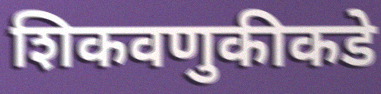
शिकवणुकीकडे